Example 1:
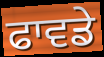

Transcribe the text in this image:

ਫਾਵਡੇ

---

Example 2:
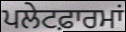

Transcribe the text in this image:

ਪਲੇਟਫ਼ਾਰਮਾਂ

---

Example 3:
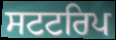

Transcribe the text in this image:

ਸਟਟਰਿਪ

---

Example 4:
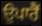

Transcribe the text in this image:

ਉਪਾਰੈਂ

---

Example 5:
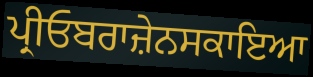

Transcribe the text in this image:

ਪ੍ਰੀਓਬਰਾਜ਼ੇਨਸਕਾਇਆ